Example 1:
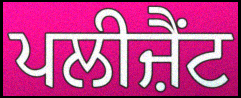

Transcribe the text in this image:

ਪਲੀਜ਼ੈਂਟ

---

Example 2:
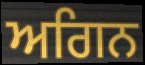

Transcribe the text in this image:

ਅਗਿਨ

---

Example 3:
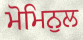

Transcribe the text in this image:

ਮੋਮਿਨੁਲ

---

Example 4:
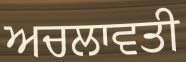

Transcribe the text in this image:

ਅਚਲਾਵਤੀ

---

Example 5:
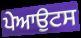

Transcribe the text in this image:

ਪੇਆਉਟਸ